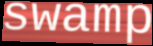
swamp